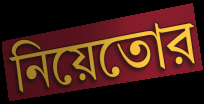
নিয়েতোর